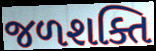
જળશક્તિ